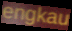
engkau